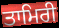
ਤਾਮਿਰੀ